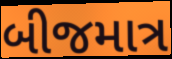
બીજમાત્ર